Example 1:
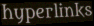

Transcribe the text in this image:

hyperlinks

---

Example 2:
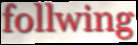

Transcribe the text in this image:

follwing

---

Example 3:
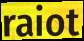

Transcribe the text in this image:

raiot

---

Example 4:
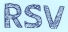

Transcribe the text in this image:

RSV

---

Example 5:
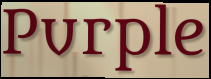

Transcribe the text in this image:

Purple